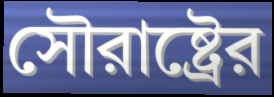
সৌরাষ্ট্রের